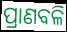
ପ୍ରାଣବଳି